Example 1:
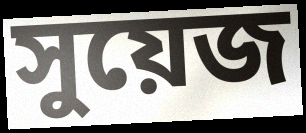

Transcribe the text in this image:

সুয়েজ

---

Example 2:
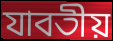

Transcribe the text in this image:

যাবতীয়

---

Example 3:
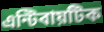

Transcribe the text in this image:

এন্টিবায়টিক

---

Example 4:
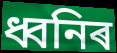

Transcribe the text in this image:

ধ্বনিৰ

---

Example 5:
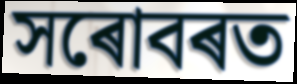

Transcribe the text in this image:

সৰোবৰত